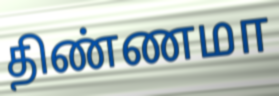
திண்ணமா